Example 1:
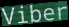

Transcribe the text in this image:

Viber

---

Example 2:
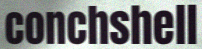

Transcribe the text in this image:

conchshell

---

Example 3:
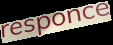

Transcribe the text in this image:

responce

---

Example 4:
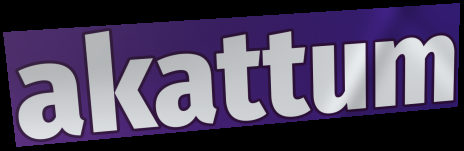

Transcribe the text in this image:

akattum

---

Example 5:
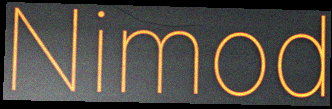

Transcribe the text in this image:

Nimod